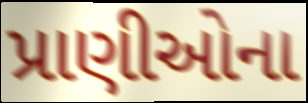
પ્રાણીઓના